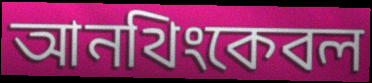
আনথিংকেবল